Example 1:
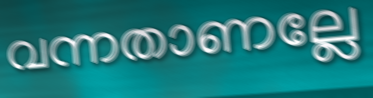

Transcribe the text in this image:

വന്നതാണല്ലേ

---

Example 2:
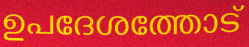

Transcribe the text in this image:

ഉപദേശത്തോട്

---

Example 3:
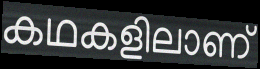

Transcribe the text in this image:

കഥകളിലാണ്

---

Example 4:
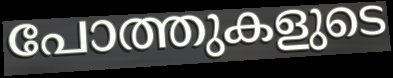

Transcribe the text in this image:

പോത്തുകളുടെ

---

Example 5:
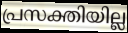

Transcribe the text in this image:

പ്രസക്തിയില്ല